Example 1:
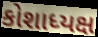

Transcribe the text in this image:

કોશાધ્યક્ષ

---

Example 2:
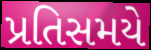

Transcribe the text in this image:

પ્રતિસમયે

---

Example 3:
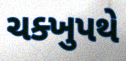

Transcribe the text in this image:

ચક્ખુપથે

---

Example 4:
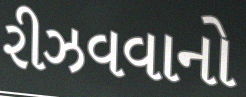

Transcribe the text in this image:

રીઝવવાનો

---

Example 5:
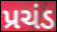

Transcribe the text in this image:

પ્રચંડ